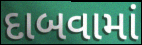
દાબવામાં